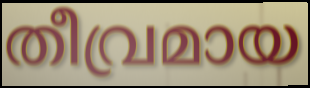
തീവ്രമായ